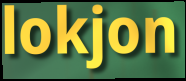
lokjon